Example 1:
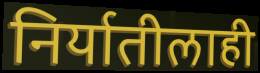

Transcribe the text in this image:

निर्यातीलाही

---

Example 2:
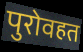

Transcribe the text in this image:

पुरोवहत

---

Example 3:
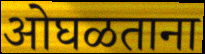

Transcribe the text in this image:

ओघळताना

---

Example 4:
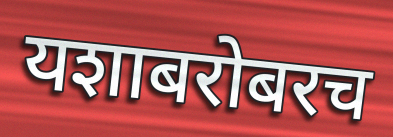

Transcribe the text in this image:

यशाबरोबरच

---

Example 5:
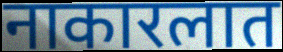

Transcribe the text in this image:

नाकारलात